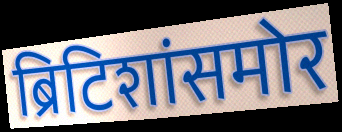
ब्रिटिशांसमोर